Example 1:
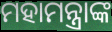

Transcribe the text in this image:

ମହାମନ୍ତ୍ରାଙ୍କ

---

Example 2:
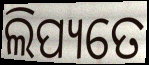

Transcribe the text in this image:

ଲିପ୍ୟତେ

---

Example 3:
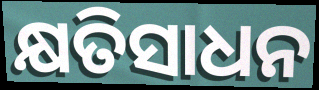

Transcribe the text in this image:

କ୍ଷତିସାଧନ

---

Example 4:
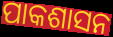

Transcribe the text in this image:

ପାକଶାସନ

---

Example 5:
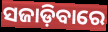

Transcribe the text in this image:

ସଜାଡ଼ିବାରେ